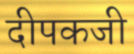
दीपकजी